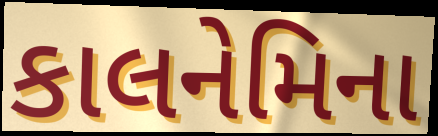
કાલનેમિના